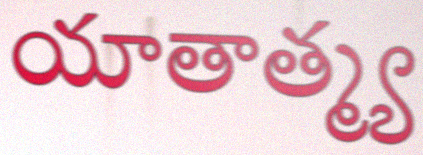
యాతాత్మ్య